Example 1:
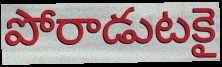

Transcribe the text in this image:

పోరాడుటకై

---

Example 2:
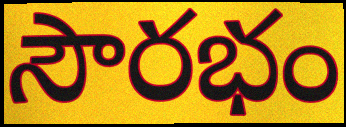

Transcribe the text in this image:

సౌరభం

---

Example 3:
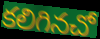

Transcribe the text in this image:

కలిగినచో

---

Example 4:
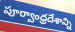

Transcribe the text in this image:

పూర్వాంధ్రదేశాన్ని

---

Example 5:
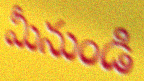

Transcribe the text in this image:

మీనుండి